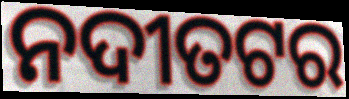
ନଦୀତଟର